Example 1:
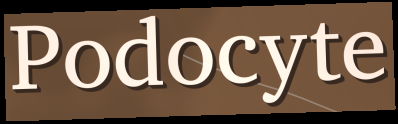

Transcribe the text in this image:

Podocyte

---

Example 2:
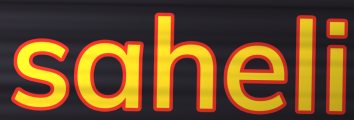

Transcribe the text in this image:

saheli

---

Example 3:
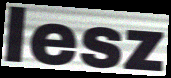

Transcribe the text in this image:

lesz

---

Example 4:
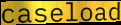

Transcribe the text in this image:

caseload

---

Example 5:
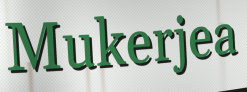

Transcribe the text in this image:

Mukerjea